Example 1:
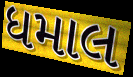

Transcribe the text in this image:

ધમાલ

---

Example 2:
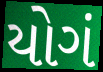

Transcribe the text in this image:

યોગં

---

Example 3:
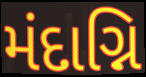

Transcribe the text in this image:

મંદાગ્નિ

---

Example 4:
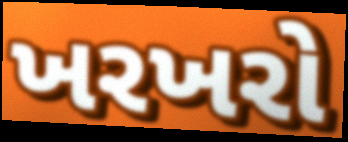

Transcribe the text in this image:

ખરખરો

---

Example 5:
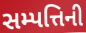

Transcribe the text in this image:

સમ્પત્તિની